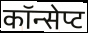
कॉन्सेप्ट